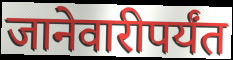
जानेवारीपर्यंत